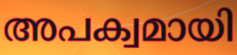
അപക്വമായി